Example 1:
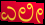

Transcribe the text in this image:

ಎಲೀ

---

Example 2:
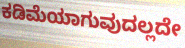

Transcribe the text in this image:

ಕಡಿಮೆಯಾಗುವುದಲ್ಲದೇ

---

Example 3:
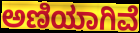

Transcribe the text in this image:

ಅಣಿಯಾಗಿವೆ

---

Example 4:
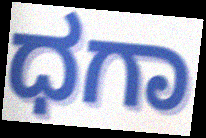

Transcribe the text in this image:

ಧಗಾ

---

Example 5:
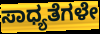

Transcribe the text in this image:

ಸಾಧ್ಯತೆಗಳೇ